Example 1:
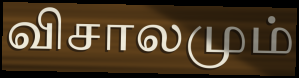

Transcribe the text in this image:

விசாலமும்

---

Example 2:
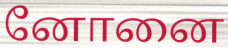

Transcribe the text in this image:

னோனை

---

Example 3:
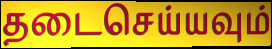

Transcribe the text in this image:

தடைசெய்யவும்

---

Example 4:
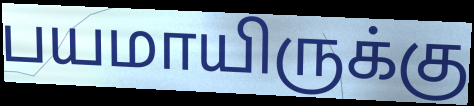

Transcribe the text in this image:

பயமாயிருக்கு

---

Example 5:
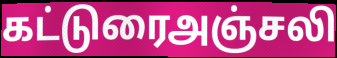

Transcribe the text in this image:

கட்டுரைஅஞ்சலி